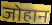
जोहान